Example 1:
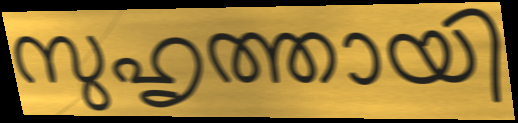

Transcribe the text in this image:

സുഹൃത്തായി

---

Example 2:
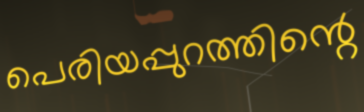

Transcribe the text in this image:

പെരിയപ്പുറത്തിന്റെ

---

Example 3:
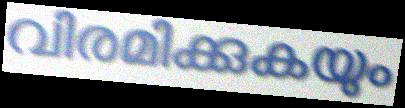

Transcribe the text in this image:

വിരമിക്കുകയും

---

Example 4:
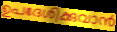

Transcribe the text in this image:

ഉപദേശിക്കുവാൻ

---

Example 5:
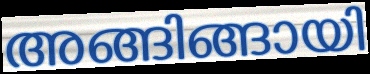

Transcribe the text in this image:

അങ്ങിങ്ങായി